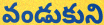
వండుకుని